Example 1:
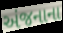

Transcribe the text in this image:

અંજનાના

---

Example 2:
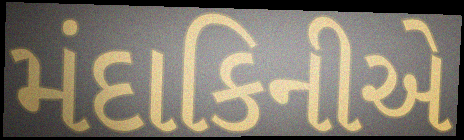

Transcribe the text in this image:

મંદાકિનીએ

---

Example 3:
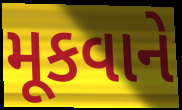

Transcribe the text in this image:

મૂકવાને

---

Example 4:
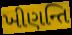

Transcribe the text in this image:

ખીણન્તિ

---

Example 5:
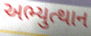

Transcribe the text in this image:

અભ્યુત્થાન